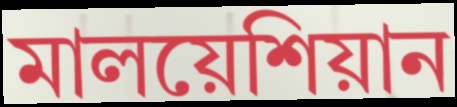
মালয়েশিয়ান